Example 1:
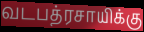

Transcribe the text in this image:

வடபத்ரசாயிக்கு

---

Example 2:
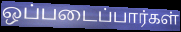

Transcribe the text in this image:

ஒப்படைப்பார்கள்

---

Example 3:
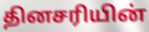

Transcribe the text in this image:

தினசரியின்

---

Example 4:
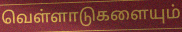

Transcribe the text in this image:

வெள்ளாடுகளையும்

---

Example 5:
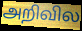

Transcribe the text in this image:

அறிவில